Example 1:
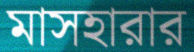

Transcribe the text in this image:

মাসহারার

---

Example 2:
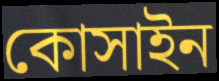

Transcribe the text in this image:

কোসাইন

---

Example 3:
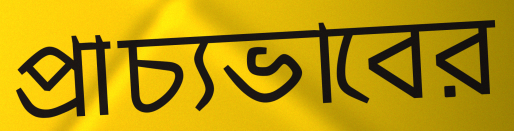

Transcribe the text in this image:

প্রাচ্যভাবের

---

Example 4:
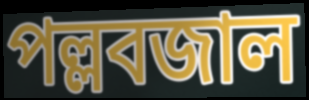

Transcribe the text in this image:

পল্লবজাল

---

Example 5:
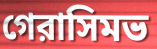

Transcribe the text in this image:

গেরাসিমভ